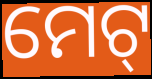
ମେଟ୍